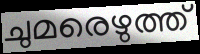
ചുമരെഴുത്ത്